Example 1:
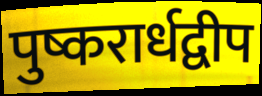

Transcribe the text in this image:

पुष्करार्धद्वीप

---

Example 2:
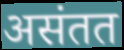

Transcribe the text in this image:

असंतत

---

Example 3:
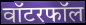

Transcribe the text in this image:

वॉटरफॉल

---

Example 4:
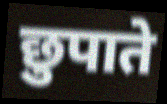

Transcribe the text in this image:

छुपाते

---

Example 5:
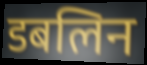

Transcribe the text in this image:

डबलिन